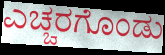
ಎಚ್ಚರಗೊಂಡು